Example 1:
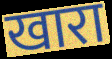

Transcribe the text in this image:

खारा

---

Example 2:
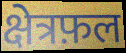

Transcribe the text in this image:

क्षेत्रफ़ल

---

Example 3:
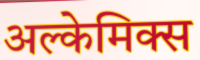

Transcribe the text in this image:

अल्केमिक्स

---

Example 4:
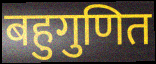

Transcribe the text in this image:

बहुगुणित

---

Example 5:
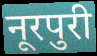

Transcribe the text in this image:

नूरपुरी